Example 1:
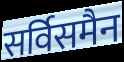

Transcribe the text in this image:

सर्विसमैन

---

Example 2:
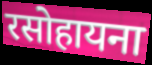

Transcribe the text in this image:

रसोहायना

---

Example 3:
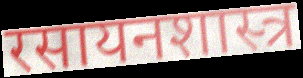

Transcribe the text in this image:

रसायनशास्त्र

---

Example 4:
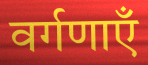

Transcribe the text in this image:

वर्गणाएँ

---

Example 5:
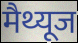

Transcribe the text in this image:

मैथ्‍यूज